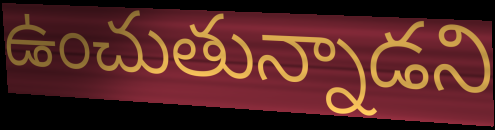
ఉంచుతున్నాడని